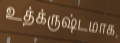
உத்க்ருஷ்டமாக